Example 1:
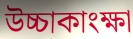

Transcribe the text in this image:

উচ্চাকাংক্ষা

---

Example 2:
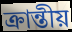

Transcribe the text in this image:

ক্ৰান্তীয়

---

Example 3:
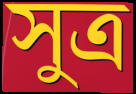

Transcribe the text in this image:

সুত্ৰ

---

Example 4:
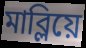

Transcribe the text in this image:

মাব্লিয়ে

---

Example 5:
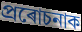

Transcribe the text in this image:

প্ৰৰোচনাক